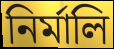
নির্মালি